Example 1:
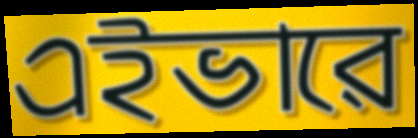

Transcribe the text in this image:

এইভাৱে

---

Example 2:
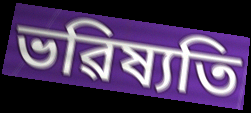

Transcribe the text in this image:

ভৱিষ্যতি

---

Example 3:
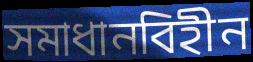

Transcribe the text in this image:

সমাধানবিহীন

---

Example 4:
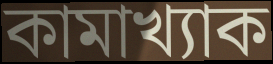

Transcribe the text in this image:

কামাখ্যাক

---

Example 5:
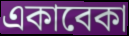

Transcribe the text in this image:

একাবেকা